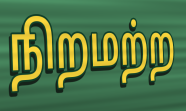
நிறமற்ற